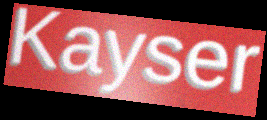
Kayser